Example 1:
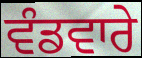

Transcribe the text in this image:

ਵੰਡਵਾਰੇ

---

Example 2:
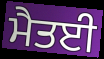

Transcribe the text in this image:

ਮੈਤਈ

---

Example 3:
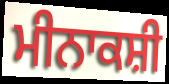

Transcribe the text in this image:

ਮੀਨਾਕਸ਼ੀ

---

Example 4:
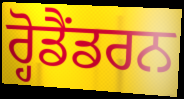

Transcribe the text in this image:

ਰ੍ਹੋਡੈਂਡਰਨ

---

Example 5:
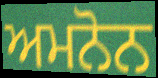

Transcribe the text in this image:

ਅਮਨੋਨ